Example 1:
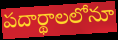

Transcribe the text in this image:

పదార్థాలలోనూ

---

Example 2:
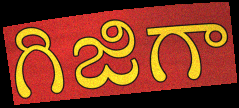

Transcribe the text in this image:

గిజిగా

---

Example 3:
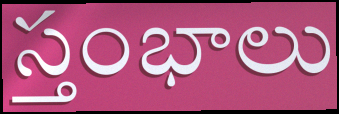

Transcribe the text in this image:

స్తంభాలు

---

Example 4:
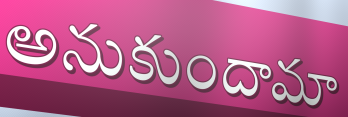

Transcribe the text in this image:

అనుకుందామా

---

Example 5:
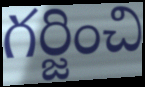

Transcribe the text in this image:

గర్జించి